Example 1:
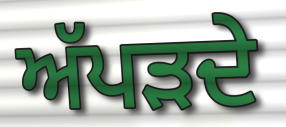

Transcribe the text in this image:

ਅੱਪੜਦੇ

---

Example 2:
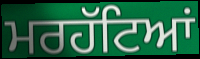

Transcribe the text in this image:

ਮਰਹੱਟਿਆਂ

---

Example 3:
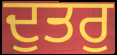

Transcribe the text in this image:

ਦੁਤਰੁ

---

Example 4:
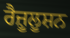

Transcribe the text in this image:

ਰੈਜ਼ੂਲੂਸ਼ਨ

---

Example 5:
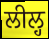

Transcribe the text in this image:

ਲੀਲ੍ਹ